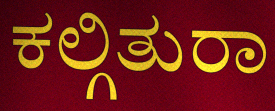
ಕಲ್ಗಿತುರಾ